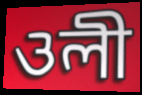
ওলী